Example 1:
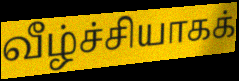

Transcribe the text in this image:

வீழ்ச்சியாகக்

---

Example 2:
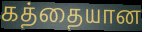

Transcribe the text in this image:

கத்தையான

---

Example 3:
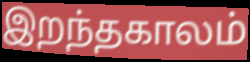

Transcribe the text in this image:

இறந்தகாலம்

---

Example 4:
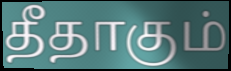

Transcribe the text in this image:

தீதாகும்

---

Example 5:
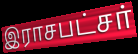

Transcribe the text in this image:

இராசபட்சர்